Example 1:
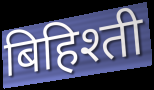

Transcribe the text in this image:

बिहिश्ती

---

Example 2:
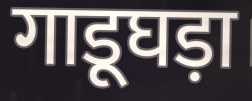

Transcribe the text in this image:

गाडूघड़ा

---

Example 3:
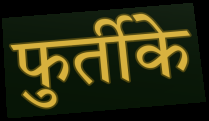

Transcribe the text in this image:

फुर्तीके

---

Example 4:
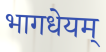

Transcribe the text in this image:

भागधेयम्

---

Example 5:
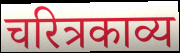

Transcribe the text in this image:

चरित्रकाव्य